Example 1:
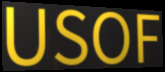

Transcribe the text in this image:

USOF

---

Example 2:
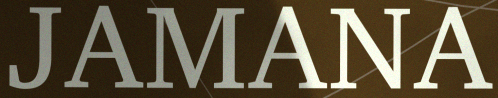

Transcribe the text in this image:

JAMANA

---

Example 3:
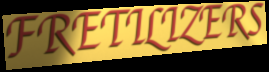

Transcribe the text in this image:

FRETILIZERS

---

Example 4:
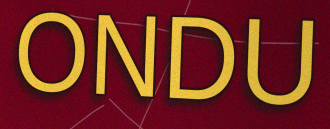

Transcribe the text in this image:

ONDU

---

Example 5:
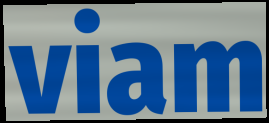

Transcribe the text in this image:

viam